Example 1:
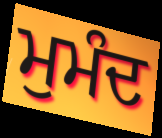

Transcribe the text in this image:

ਮੁਮੰਦ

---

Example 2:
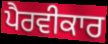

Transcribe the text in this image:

ਪੈਰਵੀਕਾਰ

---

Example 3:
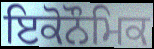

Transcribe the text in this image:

ਇਕੋਨੌਮਿਕ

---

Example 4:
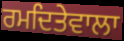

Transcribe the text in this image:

ਰਮਦਿਤੇਵਾਲਾ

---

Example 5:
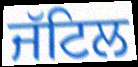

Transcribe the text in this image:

ਜੱਟਿਲ